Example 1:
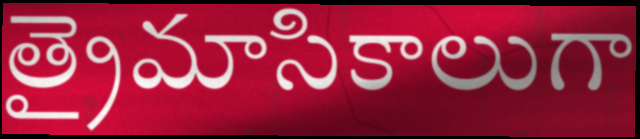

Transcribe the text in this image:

త్రైమాసికాలుగా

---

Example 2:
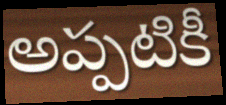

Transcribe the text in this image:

అప్పటికీ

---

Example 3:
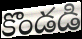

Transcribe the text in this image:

కొండడి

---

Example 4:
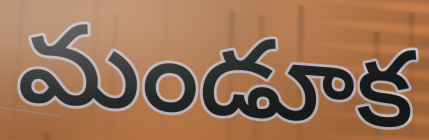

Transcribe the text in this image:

మండూక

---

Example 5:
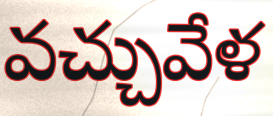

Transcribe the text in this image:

వచ్చువేళ